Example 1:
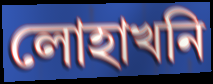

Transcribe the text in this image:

লোহাখনি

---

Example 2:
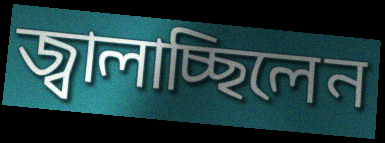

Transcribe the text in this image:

জ্বালাচ্ছিলেন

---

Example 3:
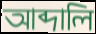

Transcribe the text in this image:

আব্দালি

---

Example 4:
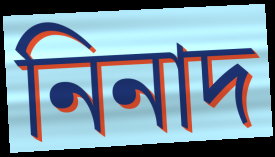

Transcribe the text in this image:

নিনাদ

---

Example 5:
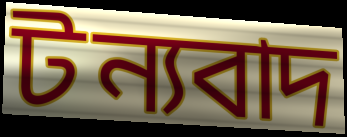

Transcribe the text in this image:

টন্যবাদ